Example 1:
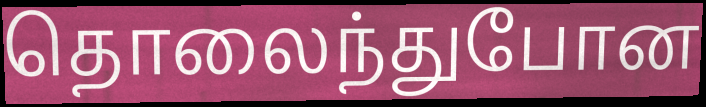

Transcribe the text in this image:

தொலைந்துபோன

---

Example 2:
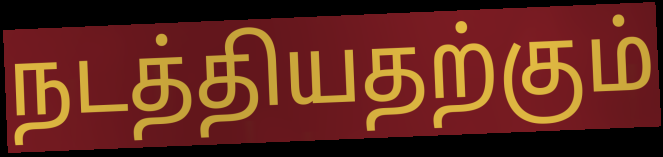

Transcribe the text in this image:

நடத்தியதற்கும்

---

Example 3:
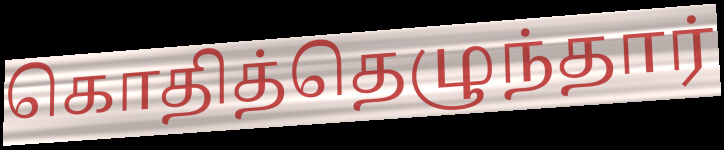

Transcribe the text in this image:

கொதித்தெழுந்தார்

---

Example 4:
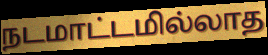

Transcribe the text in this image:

நடமாட்டமில்லாத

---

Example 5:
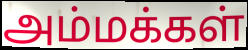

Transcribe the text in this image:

அம்மக்கள்